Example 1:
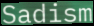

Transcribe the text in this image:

Sadism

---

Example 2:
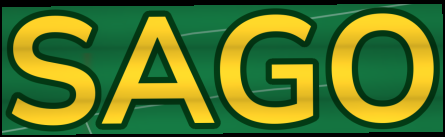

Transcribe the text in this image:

SAGO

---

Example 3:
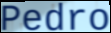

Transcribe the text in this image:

Pedro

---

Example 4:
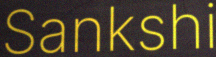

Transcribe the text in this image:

Sankshi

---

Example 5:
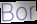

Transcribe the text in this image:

Bor